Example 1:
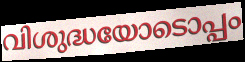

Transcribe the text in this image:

വിശുദ്ധയോടൊപ്പം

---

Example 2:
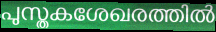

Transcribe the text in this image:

പുസ്തകശേഖരത്തിൽ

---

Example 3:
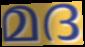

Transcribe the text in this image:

മദ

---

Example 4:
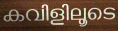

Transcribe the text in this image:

കവിളിലൂടെ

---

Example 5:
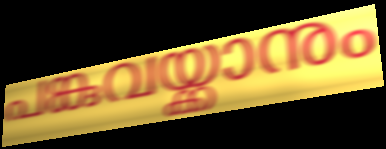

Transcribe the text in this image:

പങ്കുവയ്ക്കാനും